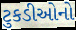
ટુકડીઓનો